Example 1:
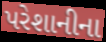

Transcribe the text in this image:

પરેશાનીના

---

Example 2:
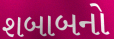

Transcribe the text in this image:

શબાબનો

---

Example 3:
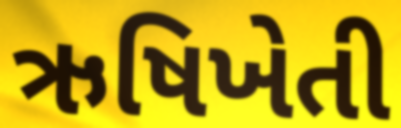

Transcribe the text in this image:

ઋષિખેતી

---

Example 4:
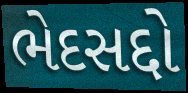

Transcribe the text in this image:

ભેદસદ્દો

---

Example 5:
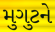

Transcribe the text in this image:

મુગુટને